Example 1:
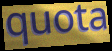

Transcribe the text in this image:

quota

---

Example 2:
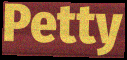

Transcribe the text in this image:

Petty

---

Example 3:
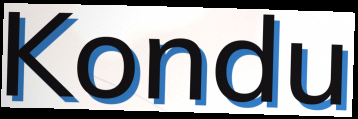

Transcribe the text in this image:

Kondu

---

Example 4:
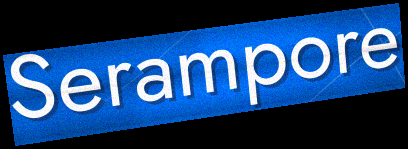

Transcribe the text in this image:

Serampore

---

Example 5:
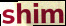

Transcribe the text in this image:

shim